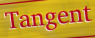
Tangent